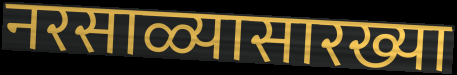
नरसाळ्यासारख्या